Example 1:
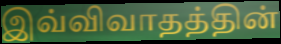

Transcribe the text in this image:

இவ்விவாதத்தின்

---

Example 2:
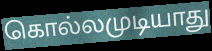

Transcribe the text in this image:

கொல்லமுடியாது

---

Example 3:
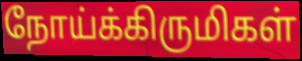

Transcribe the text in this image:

நோய்க்கிருமிகள்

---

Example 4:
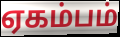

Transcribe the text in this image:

ஏகம்பம்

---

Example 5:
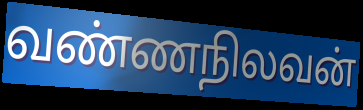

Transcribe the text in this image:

வண்ணநிலவன்